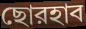
ছোরহাব